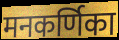
मनकर्णिका